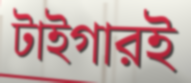
টাইগারই